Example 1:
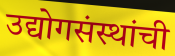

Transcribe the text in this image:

उद्योगसंस्थांची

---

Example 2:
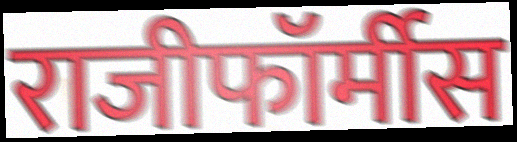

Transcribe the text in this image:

राजीफॉर्मीस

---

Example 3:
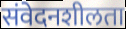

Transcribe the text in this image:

संवेदनशीलता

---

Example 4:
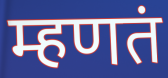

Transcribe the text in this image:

म्हणतं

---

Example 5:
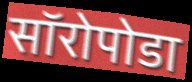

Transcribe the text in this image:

सॉरोपोडा